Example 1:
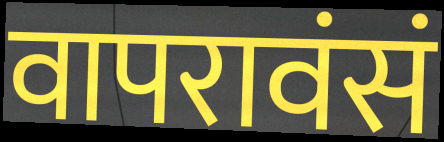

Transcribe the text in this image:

वापरावंसं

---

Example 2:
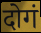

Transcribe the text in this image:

दोगं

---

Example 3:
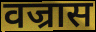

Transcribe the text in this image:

वज्रास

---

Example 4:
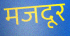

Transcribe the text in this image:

मजदूर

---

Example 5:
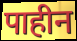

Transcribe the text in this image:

पाहीन